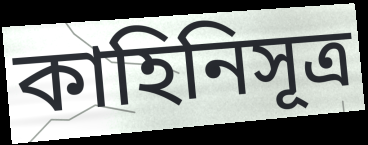
কাহিনিসূত্র